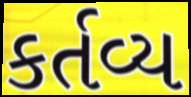
કર્તવ્ય